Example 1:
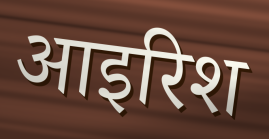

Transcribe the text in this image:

आइरिश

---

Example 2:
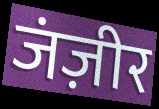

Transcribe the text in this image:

जंज़ीर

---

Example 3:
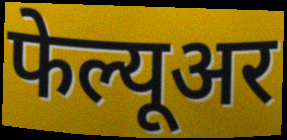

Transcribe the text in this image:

फेल्यूअर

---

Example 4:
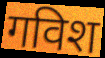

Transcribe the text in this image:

गविश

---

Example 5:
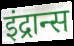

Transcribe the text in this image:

इंद्रान्स